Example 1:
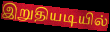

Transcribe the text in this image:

இறுதியடியில்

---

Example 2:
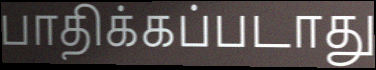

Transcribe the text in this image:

பாதிக்கப்படாது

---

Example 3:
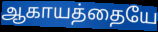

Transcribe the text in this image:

ஆகாயத்தையே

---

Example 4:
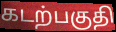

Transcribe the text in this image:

கடற்பகுதி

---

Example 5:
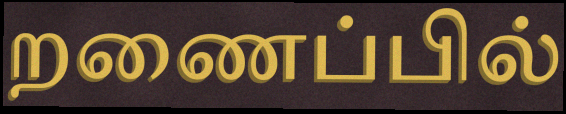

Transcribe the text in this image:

றணைப்பில்